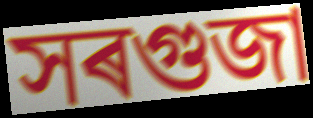
সৰগুজা